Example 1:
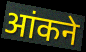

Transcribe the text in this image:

आंकने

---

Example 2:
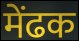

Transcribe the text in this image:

मेंढक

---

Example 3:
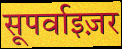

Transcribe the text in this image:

सूपर्वाइज़र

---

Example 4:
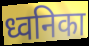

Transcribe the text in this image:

ध्वनिका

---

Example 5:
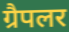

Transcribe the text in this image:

ग्रैपलर